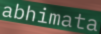
abhimata